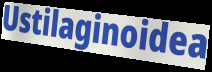
Ustilaginoidea